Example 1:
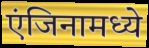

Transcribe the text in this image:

एंजिनामध्ये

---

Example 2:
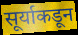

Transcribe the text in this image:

सूर्याकडून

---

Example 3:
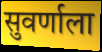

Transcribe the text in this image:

सुवर्णाला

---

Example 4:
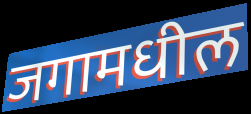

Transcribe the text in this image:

जगामधील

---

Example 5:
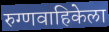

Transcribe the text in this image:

रुग्णवाहिकेला